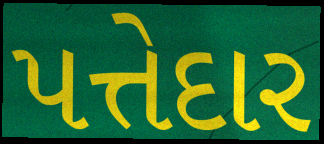
પત્તેદાર